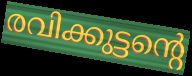
രവിക്കുട്ടന്റെ